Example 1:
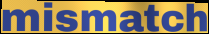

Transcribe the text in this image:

mismatch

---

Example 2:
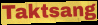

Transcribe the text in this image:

Taktsang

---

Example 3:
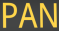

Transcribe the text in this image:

PAN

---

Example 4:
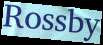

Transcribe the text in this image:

Rossby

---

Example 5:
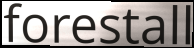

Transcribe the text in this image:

forestall